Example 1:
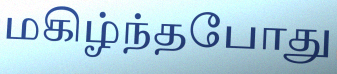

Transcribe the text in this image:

மகிழ்ந்தபோது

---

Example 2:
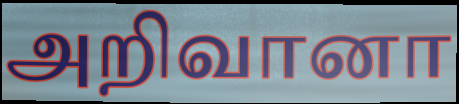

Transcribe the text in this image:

அறிவானா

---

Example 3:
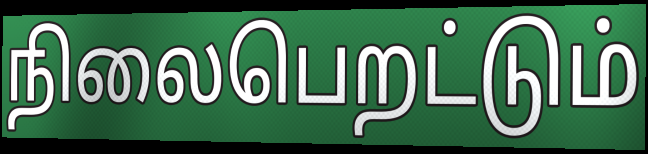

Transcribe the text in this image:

நிலைபெறட்டும்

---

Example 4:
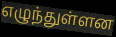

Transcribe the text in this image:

எழுந்துள்ளன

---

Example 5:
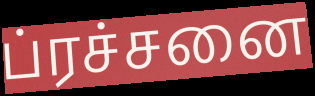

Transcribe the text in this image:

ப்ரச்சனை